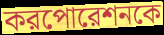
করপোরেশনকে